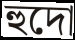
হুদো